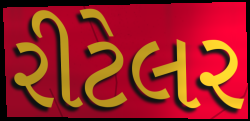
રીટેલર